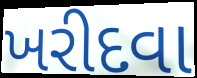
ખરીદવા